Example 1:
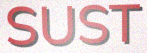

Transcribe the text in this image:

SUST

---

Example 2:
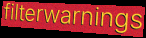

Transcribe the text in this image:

filterwarnings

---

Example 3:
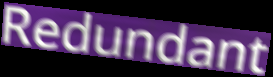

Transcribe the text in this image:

Redundant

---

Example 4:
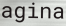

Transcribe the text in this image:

agina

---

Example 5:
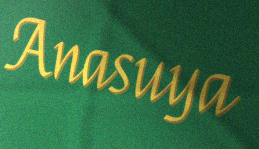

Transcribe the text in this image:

Anasuya